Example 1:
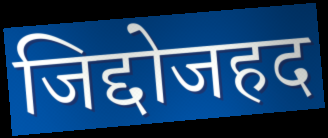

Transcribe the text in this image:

जिद्दोजहद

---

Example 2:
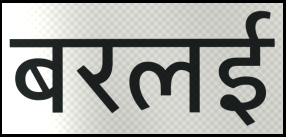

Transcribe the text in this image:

बरलई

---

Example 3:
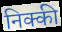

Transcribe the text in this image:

निक्‍की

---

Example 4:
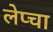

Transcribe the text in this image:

लेप्चा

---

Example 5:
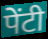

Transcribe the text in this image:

पेंटी